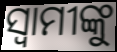
ସ୍ବାମୀଙ୍କୁ